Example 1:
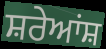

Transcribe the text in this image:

ਸ਼ਰੇਆਂਸ਼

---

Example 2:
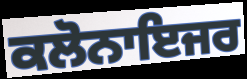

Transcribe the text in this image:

ਕਲੋਨਾਇਜਰ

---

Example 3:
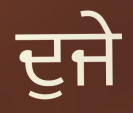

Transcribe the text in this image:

ਦੁਜੇ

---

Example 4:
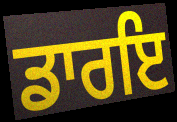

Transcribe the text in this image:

ਡਾਰਇ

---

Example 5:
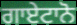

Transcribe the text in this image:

ਗਾਏਟਾਨੋ